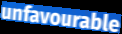
unfavourable